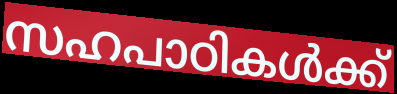
സഹപാഠികൾക്ക്